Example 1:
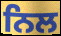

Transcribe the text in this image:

ਨਿਲ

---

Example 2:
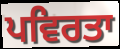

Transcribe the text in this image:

ਪਵਿਰਤਾ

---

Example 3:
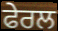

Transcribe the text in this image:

ਫੇਰਲ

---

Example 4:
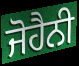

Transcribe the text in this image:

ਜੋਹੈਨੀ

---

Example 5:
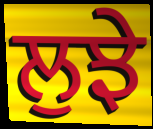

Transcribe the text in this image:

ਲੁਝੇ